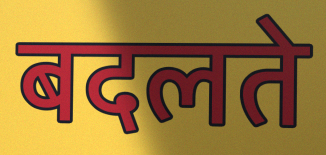
बदलते